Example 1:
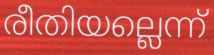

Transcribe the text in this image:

രീതിയല്ലെന്ന്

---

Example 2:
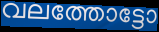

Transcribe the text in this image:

വലത്തോട്ടോ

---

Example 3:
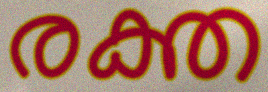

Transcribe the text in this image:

രക്ത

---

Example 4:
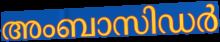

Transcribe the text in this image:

അംബാസിഡർ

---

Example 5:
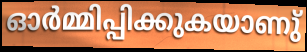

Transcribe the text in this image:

ഓർമ്മിപ്പിക്കുകയാണു്